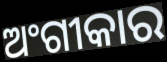
ଅଂଗୀକାର